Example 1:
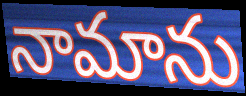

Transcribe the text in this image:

నామాను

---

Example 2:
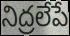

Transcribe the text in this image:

నిద్రలేపే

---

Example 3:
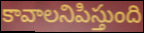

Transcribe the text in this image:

కావాలనిపిస్తుంది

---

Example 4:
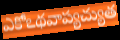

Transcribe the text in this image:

ఎకోఽథవాప్యచ్యుత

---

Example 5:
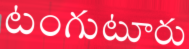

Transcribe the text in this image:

టంగుటూరు